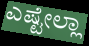
ಎಷ್ಟೇಲ್ಲಾ